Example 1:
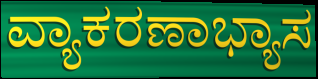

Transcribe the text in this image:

ವ್ಯಾಕರಣಾಭ್ಯಾಸ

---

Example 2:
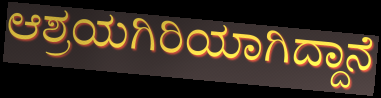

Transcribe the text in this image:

ಆಶ್ರಯಗಿರಿಯಾಗಿದ್ದಾನೆ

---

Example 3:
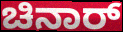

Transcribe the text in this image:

ಚಿನಾರ್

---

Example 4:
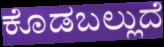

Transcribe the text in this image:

ಕೊಡಬಲ್ಲುದೆ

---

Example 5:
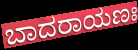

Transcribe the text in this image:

ಬಾದರಾಯಣಃ